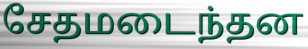
சேதமடைந்தன